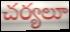
చర్యలూ